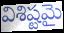
విశిష్టమై